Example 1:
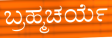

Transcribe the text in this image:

ಬ್ರಹ್ಮಚರ್ಯೆ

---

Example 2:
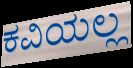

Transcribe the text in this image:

ಕವಿಯಲ್ಲ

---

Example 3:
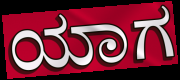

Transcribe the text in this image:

ಯಾಗ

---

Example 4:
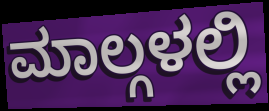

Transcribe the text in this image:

ಮಾಲ್ಗಳಲ್ಲಿ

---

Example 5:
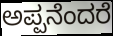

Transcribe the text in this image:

ಅಪ್ಪನೆಂದರೆ